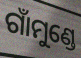
ଗାଁମୁଣ୍ଡେ